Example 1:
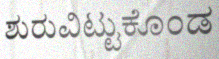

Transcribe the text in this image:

ಶುರುವಿಟ್ಟುಕೊಂಡ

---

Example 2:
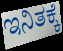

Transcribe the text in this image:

ಇನಿತಕ್ಕೆ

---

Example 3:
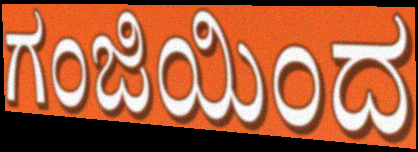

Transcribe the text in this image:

ಗಂಜಿಯಿಂದ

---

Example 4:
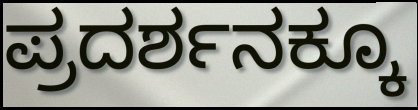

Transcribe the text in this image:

ಪ್ರದರ್ಶನಕ್ಕೂ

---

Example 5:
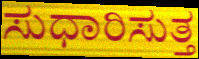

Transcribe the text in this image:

ಸುಧಾರಿಸುತ್ತ